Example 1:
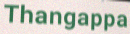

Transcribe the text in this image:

Thangappa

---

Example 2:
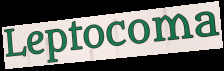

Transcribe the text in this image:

Leptocoma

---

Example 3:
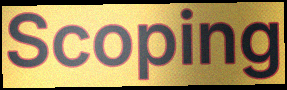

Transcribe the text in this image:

Scoping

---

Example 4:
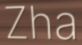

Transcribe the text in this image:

Zha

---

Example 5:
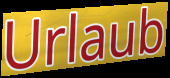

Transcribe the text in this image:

Urlaub